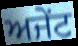
ਅਜੇਂਟ